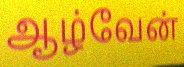
ஆழ்வேன்